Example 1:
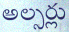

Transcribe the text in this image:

అల్సర్లు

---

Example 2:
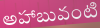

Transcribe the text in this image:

అహాబువంటి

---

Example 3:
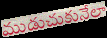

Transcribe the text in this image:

ముడుచుకునేలా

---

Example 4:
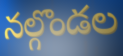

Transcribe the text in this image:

నల్గొండల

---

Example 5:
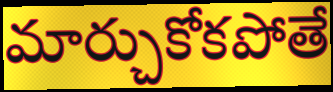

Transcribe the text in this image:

మార్చుకోకపోతే